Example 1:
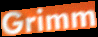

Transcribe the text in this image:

Grimm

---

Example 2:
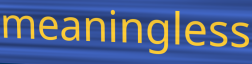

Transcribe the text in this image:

meaningless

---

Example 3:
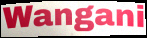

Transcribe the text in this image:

Wangani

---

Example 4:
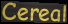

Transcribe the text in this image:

Cereal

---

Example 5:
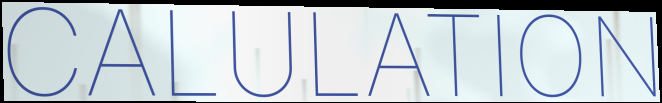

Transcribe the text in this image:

CALULATION